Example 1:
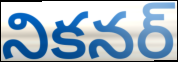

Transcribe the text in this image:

నికనర్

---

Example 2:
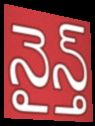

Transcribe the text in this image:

నైన్త్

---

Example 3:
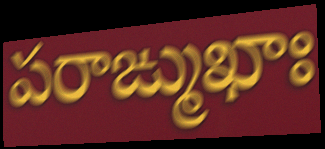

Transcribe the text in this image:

పరాఙ్ముఖాః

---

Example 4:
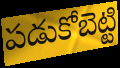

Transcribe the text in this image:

పడుకోబెట్టి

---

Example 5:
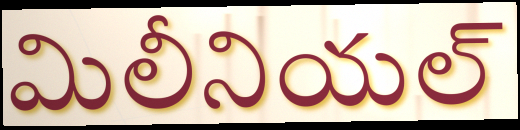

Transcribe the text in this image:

మిలీనియల్